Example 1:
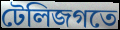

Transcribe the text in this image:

টেলিজগতে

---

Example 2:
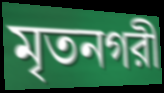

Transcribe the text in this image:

মৃতনগরী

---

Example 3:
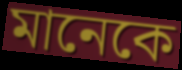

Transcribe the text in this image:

মানেকে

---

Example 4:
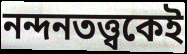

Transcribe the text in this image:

নন্দনতত্ত্বকেই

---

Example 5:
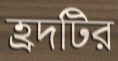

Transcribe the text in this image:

হ্রদটির